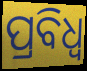
ପ୍ରବିଧ୍ଵ